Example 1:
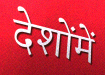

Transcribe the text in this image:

देशोंमें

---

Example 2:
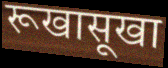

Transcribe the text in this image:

रूखासूखा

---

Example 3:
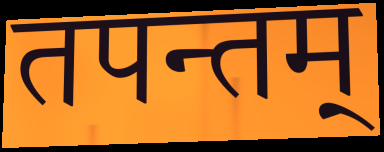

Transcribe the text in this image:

तपन्तम्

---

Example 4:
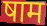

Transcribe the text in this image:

षाम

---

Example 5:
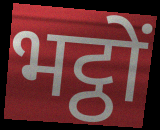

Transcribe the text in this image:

भट्ठों